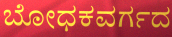
ಬೋಧಕವರ್ಗದ